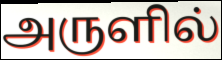
அருளில்